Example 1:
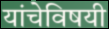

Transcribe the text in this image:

यांचेविषयी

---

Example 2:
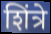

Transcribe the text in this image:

शिंत्रे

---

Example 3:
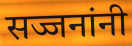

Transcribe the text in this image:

सज्जनांनी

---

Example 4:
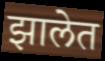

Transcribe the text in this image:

झालेत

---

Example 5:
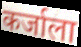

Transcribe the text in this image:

कर्जाला